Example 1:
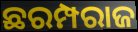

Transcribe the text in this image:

ଛରମ୍ପରାଜ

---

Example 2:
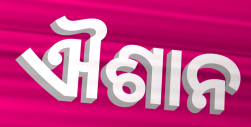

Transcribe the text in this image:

ଐଶାନ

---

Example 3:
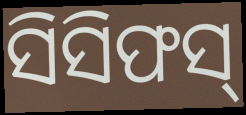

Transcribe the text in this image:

ସିସିଫସ୍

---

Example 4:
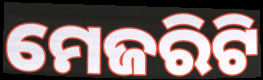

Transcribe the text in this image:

ମେଜରିଟି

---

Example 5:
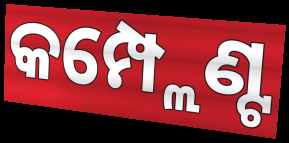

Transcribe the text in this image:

କମ୍ପ୍ଲେଣ୍ଟ